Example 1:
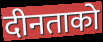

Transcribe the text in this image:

दीनताको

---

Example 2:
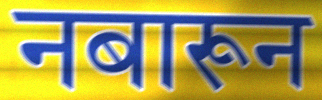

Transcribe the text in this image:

नबारून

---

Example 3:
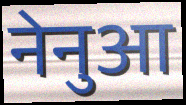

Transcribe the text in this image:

नेनुआ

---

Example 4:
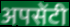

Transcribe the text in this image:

अपसेंटी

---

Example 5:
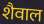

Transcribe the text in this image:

शैवाल